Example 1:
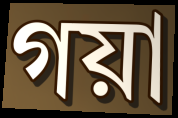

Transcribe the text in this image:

গয়া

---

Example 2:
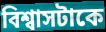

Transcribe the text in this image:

বিশ্বাসটাকে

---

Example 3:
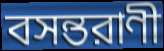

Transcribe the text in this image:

বসন্তরাণী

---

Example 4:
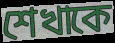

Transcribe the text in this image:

শেখাকে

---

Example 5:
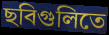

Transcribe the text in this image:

ছবিগুলিতে